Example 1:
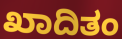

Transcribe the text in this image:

ಖಾದಿತಂ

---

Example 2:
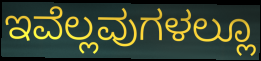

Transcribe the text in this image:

ಇವೆಲ್ಲವುಗಳಲ್ಲೂ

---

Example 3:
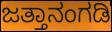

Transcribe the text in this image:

ಜತ್ತಾನಂಗಡಿ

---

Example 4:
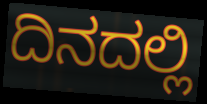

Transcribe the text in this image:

ದಿನದಲ್ಲಿ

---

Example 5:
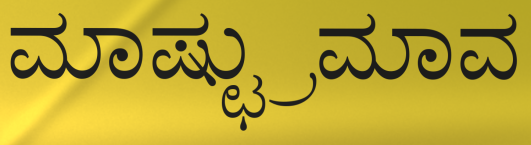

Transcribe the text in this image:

ಮಾಷ್ಟ್ರುಮಾವ